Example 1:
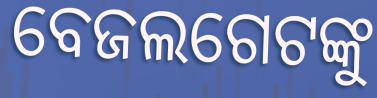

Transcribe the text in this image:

ବେଜଲଗେଟଙ୍କୁ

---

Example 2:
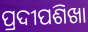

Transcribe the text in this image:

ପ୍ରଦୀପଶିଖା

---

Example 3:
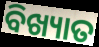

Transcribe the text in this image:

ବିଖ୍ୟାତ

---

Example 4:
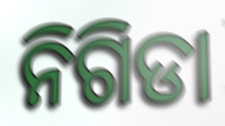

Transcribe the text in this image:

ନିଗିଡା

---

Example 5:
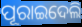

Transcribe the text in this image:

ପୂରାଇଦେଲି